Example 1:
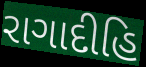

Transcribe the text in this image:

રાગાદીહિ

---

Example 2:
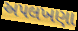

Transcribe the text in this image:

અપલખણા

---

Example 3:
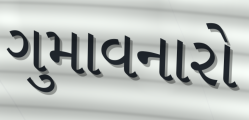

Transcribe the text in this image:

ગુમાવનારો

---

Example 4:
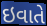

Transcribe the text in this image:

ઇવાતે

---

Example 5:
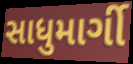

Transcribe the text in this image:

સાધુમાર્ગી